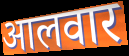
आलवार